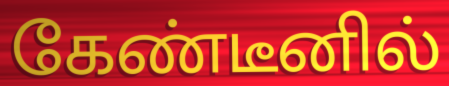
கேண்டீனில்